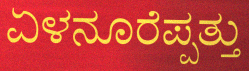
ಏಳನೂರೆಪ್ಪತ್ತು